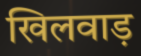
खिलवाड़